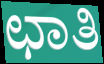
ಛಾತಿ